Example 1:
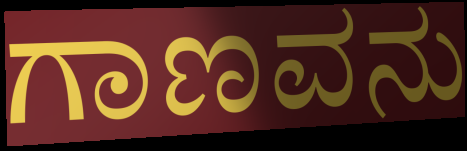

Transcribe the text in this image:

ಗಾಣವನು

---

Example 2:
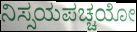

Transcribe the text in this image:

ನಿಸ್ಸಯಪಚ್ಚಯೋ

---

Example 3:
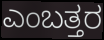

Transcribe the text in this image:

ಎಂಬತ್ತರ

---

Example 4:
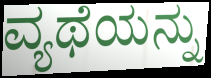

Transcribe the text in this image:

ವ್ಯಥೆಯನ್ನು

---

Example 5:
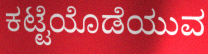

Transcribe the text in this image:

ಕಟ್ಟೆಯೊಡೆಯುವ